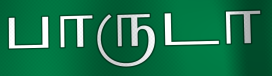
பாருடா